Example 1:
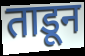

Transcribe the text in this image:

ताडून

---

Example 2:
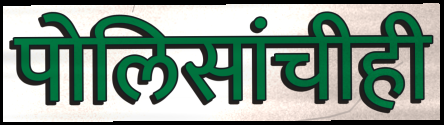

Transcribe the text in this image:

पोलिसांचीही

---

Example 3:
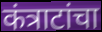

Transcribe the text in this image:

कंत्राटांचा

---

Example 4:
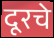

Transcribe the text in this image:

दूरचे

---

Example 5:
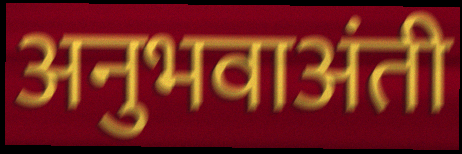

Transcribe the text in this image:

अनुभवाअंती